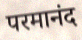
परमानंद